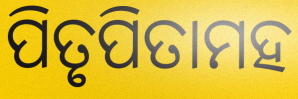
ପିତୃପିତାମହ